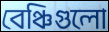
বেঞ্চিগুলো